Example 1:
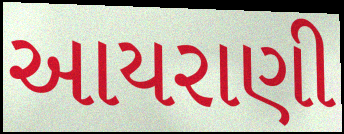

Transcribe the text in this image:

આયરાણી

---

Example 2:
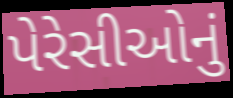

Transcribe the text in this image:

પેરેસીઓનું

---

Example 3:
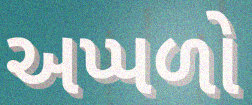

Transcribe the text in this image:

અપ્પળો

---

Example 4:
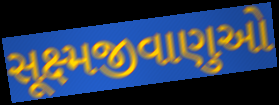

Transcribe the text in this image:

સૂક્ષ્મજીવાણુઓ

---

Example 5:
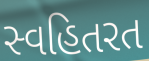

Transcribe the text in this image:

સ્વહિતરત